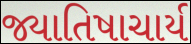
જ્યાતિષાચાર્ય